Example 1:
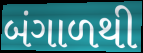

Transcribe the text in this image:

બંગાળથી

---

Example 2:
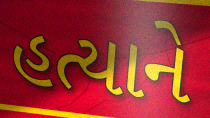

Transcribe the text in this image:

હત્યાને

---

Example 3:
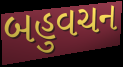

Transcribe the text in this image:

બહુવચન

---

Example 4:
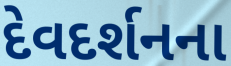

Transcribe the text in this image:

દેવદર્શનના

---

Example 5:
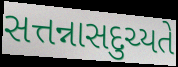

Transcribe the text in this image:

સત્તન્નાસદુચ્યતે